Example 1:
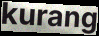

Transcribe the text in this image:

kurang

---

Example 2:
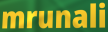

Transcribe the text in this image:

mrunali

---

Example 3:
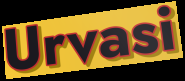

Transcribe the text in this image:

Urvasi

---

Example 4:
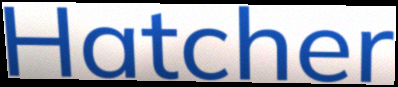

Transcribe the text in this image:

Hatcher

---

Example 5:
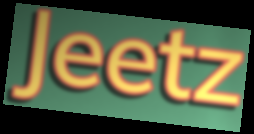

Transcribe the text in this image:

Jeetz